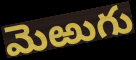
మెఱుగు